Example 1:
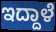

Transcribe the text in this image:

ಇದ್ದಾಳೆ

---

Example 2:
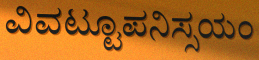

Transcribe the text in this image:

ವಿವಟ್ಟೂಪನಿಸ್ಸಯಂ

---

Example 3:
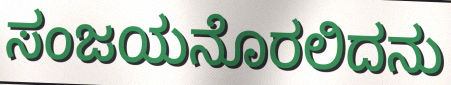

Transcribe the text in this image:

ಸಂಜಯನೊರಲಿದನು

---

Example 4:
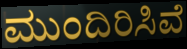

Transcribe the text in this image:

ಮುಂದಿರಿಸಿವೆ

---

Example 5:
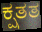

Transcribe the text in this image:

ಕ್ಷತತ